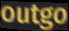
outgo